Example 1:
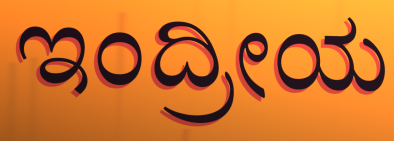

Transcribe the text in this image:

ಇಂದ್ರೀಯ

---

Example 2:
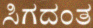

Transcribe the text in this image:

ಸಿಗದಂತ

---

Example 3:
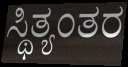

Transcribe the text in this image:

ಸ್ಥಿತ್ಯಂತರ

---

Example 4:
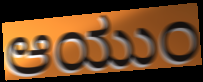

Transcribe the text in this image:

ಆಯುಂ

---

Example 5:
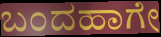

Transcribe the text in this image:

ಬಂದಹಾಗೇ